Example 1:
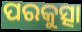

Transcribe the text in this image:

ପରକୁତ୍ସା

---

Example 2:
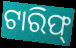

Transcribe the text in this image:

ଟାରିଫ୍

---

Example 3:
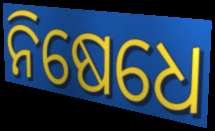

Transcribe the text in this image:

ନିଷେଧେ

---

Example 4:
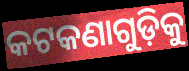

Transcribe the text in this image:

କଟକଣାଗୁଡ଼ିକୁ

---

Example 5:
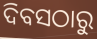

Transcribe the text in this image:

ଦିବସଠାରୁ